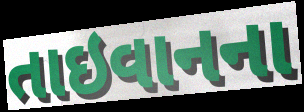
તાઇવાનના